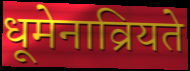
धूमेनाव्रियते